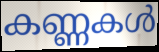
കണ്ണകൾ